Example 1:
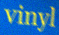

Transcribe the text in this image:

vinyl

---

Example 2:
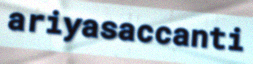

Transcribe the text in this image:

ariyasaccanti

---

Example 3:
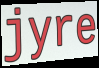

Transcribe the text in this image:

jyre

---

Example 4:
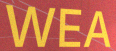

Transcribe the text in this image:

WEA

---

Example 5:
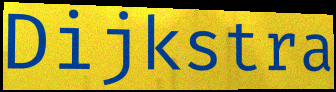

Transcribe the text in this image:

Dijkstra